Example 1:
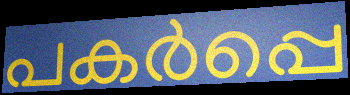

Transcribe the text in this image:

പകർപ്പെ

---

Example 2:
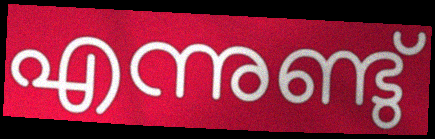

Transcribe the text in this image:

എന്നുണ്ടു്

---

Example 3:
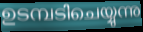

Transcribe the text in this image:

ഉടമ്പടിചെയ്യുന്നു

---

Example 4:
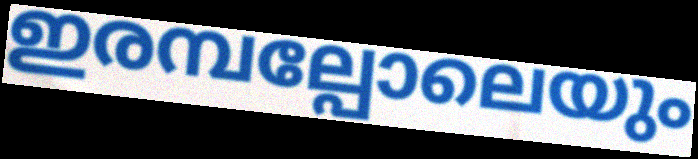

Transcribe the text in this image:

ഇരമ്പല്പോലെയും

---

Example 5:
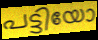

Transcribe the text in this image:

പട്ടിയോ